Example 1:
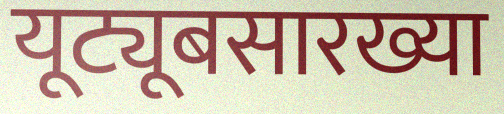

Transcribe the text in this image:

यूट्यूबसारख्या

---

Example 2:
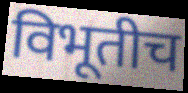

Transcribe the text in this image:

विभूतीच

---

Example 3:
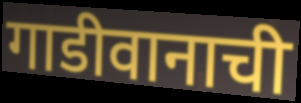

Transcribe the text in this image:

गाडीवानाची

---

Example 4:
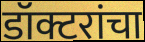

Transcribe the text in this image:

डॉक्टरांचा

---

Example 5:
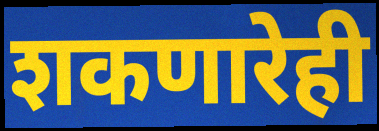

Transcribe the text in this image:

शकणारेही